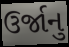
ઉર્જાનુ